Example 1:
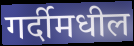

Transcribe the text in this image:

गर्दीमधील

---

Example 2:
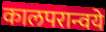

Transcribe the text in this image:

कालपरान्वये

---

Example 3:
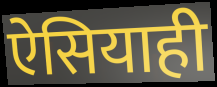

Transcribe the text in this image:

ऐसियाही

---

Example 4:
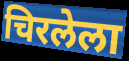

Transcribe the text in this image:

चिरलेला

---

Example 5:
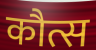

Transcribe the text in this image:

कौत्स